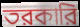
তরকারি